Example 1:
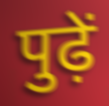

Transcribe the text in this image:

पुढ़ें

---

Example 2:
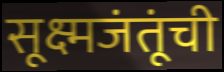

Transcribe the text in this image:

सूक्ष्मजंतूंची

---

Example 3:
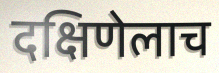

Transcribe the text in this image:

दक्षिणेलाच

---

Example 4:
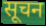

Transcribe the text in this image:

सूचन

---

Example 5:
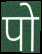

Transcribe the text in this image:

पो